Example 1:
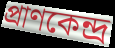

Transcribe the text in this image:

প্রাণকেন্দ্র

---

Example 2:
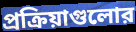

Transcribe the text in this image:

প্রক্রিয়াগুলোর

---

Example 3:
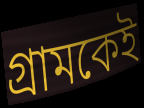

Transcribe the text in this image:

গ্রামকেই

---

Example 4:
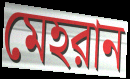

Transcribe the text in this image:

মেহরান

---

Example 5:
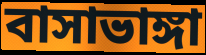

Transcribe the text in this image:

বাসাভাঙ্গা